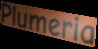
Plumeria